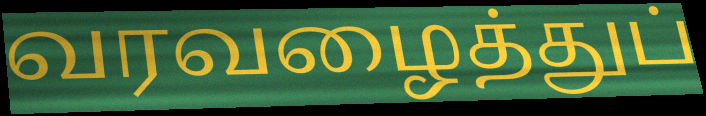
வரவழைத்துப்